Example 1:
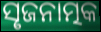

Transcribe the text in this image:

ସୃଜନାତ୍ମକ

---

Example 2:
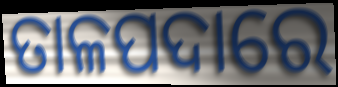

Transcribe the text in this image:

ତାଳପଦାରେ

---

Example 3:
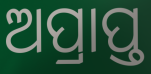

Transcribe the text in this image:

ଅପ୍ରାପ୍ତ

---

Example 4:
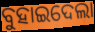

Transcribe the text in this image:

ବୁହାଇଦେଲା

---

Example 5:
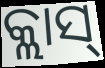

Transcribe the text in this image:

କ୍ଲାସ୍